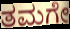
ತಮಗೇ